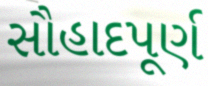
સૌહાદપૂર્ણ